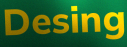
Desing